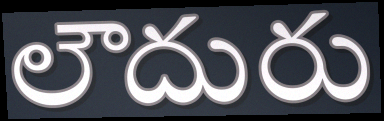
లౌదురు